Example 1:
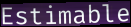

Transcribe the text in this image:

Estimable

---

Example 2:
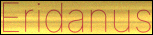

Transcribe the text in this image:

Eridanus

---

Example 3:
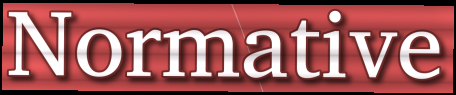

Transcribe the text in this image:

Normative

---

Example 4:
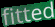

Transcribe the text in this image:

fitted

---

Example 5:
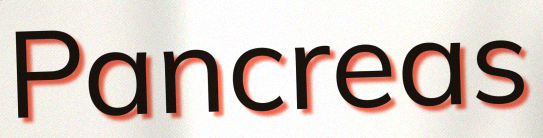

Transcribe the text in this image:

Pancreas